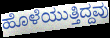
ಹೊಳೆಯುತ್ತಿದ್ದವು